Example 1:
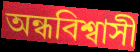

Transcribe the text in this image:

অন্ধবিশ্বাসী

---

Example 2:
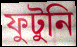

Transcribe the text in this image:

ফুটুনি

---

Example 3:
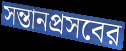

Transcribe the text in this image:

সন্তানপ্রসবের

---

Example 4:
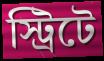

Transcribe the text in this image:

স্ট্রিটে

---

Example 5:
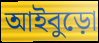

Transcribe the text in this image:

আইবুড়ো